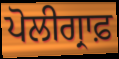
ਪੋਲੀਗ੍ਰਾਫ਼